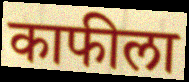
काफीला